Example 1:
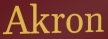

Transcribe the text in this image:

Akron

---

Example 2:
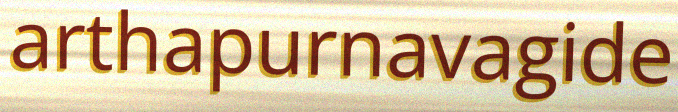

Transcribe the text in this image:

arthapurnavagide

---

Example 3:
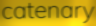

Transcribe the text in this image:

catenary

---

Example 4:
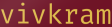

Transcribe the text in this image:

vivkram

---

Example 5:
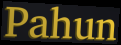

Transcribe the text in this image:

Pahun